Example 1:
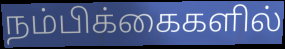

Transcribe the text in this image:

நம்பிக்கைகளில்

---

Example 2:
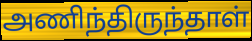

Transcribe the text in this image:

அணிந்திருந்தாள்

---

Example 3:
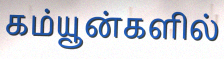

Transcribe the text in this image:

கம்யூன்களில்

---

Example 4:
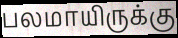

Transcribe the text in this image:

பலமாயிருக்கு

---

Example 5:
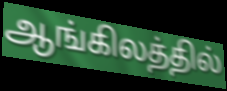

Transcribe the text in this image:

ஆங்கிலத்தில்